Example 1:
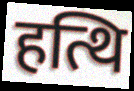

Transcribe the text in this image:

हत्थि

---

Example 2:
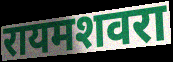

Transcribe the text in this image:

रायमशवरा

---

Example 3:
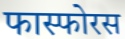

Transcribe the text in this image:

फास्‍फोरस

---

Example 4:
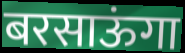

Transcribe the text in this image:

बरसाऊंगा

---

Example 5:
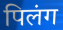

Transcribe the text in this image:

पिलंग